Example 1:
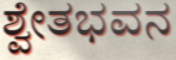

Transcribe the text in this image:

ಶ್ವೇತಭವನ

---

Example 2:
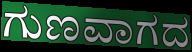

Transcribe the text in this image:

ಗುಣವಾಗದ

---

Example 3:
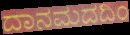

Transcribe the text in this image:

ದಾನಮದದಿಂ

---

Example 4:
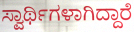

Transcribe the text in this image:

ಸ್ವಾರ್ಥಿಗಳಾಗಿದ್ದಾರೆ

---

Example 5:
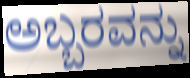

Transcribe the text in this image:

ಅಬ್ಬರವನ್ನು